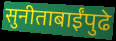
सुनीताबाईंपुढे